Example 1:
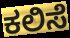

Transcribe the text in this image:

ಕಲಿಸೆ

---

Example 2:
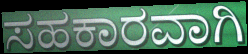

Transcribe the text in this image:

ಸಹಕಾರವಾಗಿ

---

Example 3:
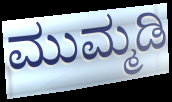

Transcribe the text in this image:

ಮುಮ್ಮಡಿ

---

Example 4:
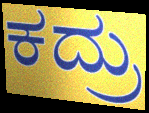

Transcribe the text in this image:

ಕದ್ರು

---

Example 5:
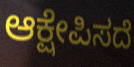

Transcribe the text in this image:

ಆಕ್ಷೇಪಿಸದೆ